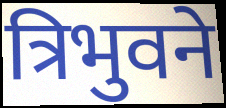
त्रिभुवने